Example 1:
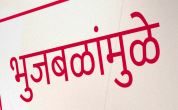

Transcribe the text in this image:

भुजबळांमुळे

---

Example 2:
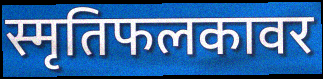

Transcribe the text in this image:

स्मृतिफलकावर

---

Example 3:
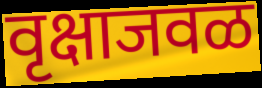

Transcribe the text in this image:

वृक्षाजवळ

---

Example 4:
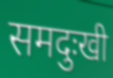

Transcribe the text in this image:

समदुःखी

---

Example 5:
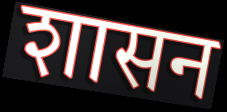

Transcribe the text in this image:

शासन